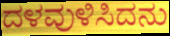
ದಳವುಳಿಸಿದನು